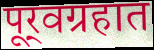
पूर्वग्रहात